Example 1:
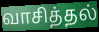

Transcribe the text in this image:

வாசித்தல்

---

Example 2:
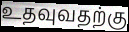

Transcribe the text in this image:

உதவுவதற்கு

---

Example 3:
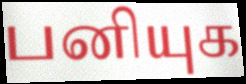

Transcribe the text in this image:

பனியுக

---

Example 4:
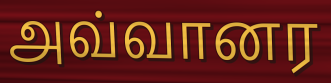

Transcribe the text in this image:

அவ்வானர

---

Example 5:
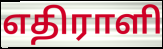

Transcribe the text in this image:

எதிராளி